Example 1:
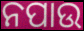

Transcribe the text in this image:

ନପାଉ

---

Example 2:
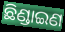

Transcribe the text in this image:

ଛିଣ୍ଡାଇଣ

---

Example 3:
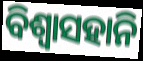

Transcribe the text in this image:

ବିଶ୍ବାସହାନି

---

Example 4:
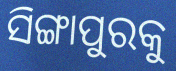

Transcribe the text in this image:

ସିଙ୍ଗାପୁରକୁ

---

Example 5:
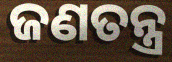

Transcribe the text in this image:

ଜଣତନ୍ତ୍ର